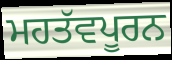
ਮਹਤੱਵਪੂਰਨ